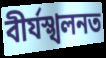
বীৰ্যস্খলনত